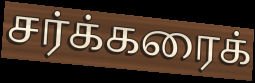
சர்க்கரைக்